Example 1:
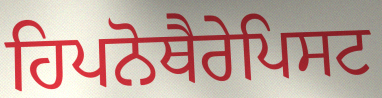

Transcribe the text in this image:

ਹਿਪਨੋਥੈਰੇਪਿਸਟ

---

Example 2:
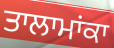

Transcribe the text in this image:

ਤਾਲਾਮਾਂਕਾ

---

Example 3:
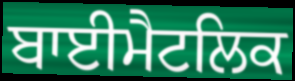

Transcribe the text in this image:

ਬਾਈਮੈਟਲਿਕ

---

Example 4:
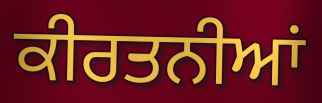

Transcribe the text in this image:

ਕੀਰਤਨੀਆਂ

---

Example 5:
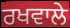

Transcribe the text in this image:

ਰਖਵਾਲੇ